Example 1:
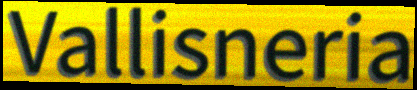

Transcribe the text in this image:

Vallisneria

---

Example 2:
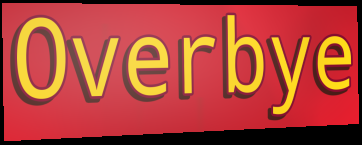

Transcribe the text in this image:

Overbye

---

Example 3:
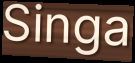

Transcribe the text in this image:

Singa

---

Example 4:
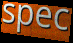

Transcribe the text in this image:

spec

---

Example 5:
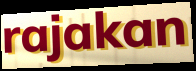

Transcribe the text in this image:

rajakan